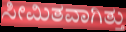
ಸೀಮಿತವಾಗಿತ್ತು